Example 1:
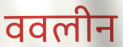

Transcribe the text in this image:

ववलीन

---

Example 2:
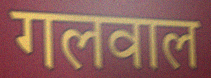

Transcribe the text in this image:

गलवाल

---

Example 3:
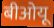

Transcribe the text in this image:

बीओयू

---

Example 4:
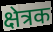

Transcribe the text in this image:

क्षेत्रक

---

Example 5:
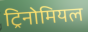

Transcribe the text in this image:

ट्रिनोमियल